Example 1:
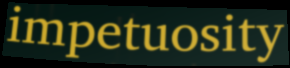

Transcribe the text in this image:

impetuosity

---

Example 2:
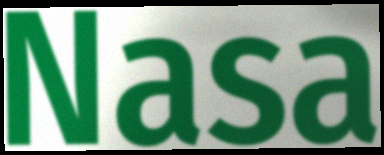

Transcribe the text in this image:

Nasa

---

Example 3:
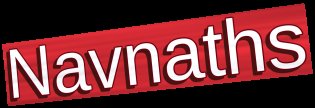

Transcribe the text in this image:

Navnaths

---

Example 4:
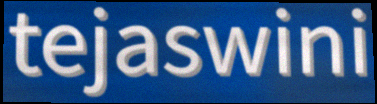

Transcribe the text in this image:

tejaswini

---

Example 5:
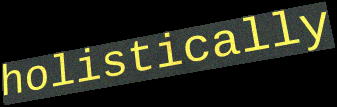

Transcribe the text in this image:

holistically